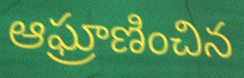
ఆఘ్రాణించిన